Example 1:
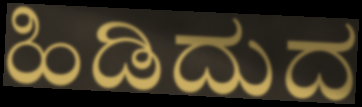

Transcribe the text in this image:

ಹಿಡಿದುದ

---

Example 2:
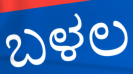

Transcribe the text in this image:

ಬಳಲ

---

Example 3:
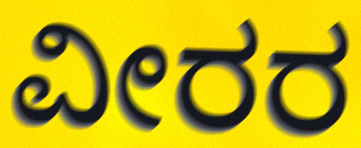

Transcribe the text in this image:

ವೀರರ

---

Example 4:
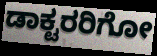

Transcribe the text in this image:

ಡಾಕ್ಟರರಿಗೋ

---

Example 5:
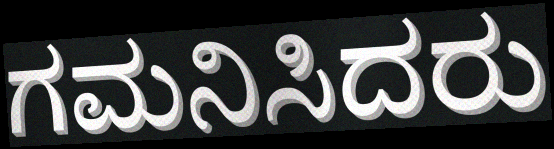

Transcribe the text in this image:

ಗಮನಿಸಿದರು